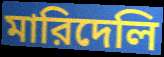
মারিদেলি